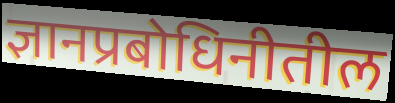
ज्ञानप्रबोधिनीतील